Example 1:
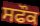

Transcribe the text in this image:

ਸਫੌਕ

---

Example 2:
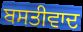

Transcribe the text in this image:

ਬਸਤੀਵਾਦ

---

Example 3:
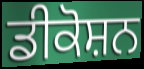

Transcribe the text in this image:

ਡੀਕੋਸ਼ਨ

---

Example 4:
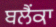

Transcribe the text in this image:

ਬਲੈਂਕਾ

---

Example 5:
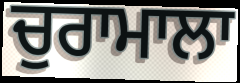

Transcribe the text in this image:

ਚੁਰਾਮਾਲਾ